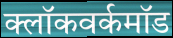
क्लॉकवर्कमॉड